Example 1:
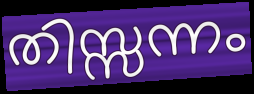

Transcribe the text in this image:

തിസ്സന്നം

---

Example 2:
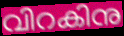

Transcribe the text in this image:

വിറകിനു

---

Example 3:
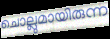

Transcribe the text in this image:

ചൊല്ലുമായിരുന്ന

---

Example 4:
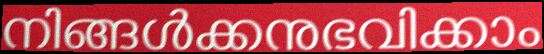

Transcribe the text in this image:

നിങ്ങൾക്കനുഭവിക്കാം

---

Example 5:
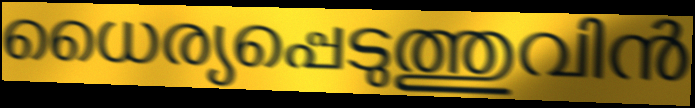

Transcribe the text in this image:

ധൈര്യപ്പെടുത്തുവിൻ